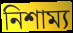
নিশাম্য